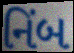
નિંબ